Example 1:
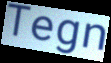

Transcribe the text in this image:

Tegn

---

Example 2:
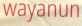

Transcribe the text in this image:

wayanun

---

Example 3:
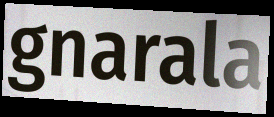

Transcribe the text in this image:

gnarala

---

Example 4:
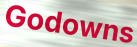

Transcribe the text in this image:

Godowns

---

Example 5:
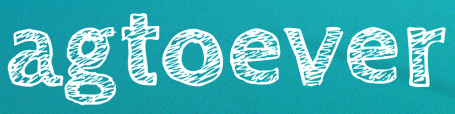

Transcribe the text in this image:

agtoever